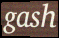
gash